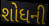
શોધની